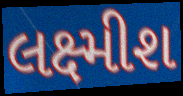
લક્ષ્મીશ